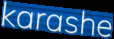
karashe